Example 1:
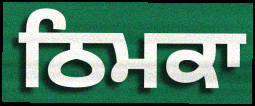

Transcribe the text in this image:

ਠਿਮਕਾ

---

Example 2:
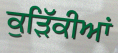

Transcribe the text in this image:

ਕੁੜਿੱਕੀਆਂ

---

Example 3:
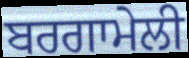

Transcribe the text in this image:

ਬਰਗਾਮੇਲੀ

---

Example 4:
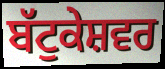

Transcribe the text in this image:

ਬੱਟੁਕੇਸ਼ਵਰ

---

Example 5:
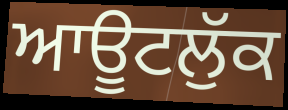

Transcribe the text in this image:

ਆਊਟਲੁੱਕ